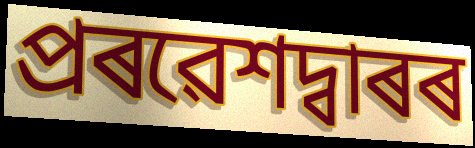
প্ৰৰৱেশদ্বাৰৰ